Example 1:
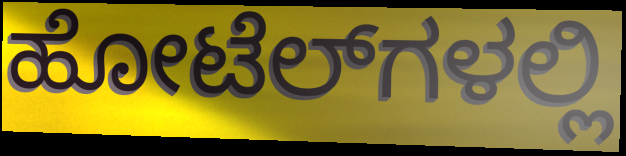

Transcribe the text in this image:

ಹೋಟೆಲ್‌ಗಳಲ್ಲಿ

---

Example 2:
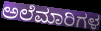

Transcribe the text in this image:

ಅಲೆಮಾರಿಗಳ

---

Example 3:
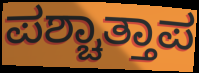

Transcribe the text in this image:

ಪಶ್ಚಾತ್ತಾಪ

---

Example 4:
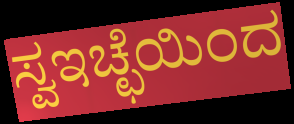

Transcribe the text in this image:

ಸ್ವಇಚ್ಛೆಯಿಂದ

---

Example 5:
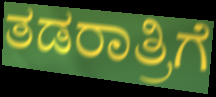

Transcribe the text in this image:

ತಡರಾತ್ರಿಗೆ